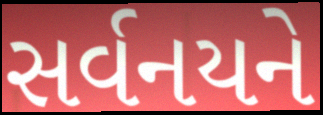
સર્વનયને